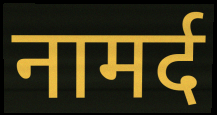
नामर्द